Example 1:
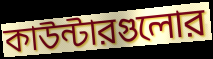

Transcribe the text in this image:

কাউন্টারগুলোর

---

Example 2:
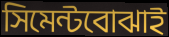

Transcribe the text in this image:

সিমেন্টবোঝাই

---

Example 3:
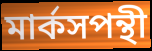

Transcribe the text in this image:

মার্কসপন্থী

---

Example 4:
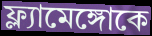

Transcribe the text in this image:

ফ্ল্যামেঙ্গোকে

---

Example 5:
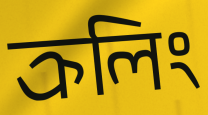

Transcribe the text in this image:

ক্রলিং